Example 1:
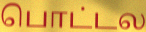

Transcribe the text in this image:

பொட்டல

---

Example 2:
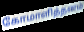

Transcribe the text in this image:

கோமாளித்தனம்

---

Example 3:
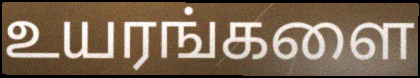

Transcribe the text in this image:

உயரங்களை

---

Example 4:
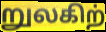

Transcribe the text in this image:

றுலகிற்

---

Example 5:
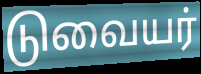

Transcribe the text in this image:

டுவையர்